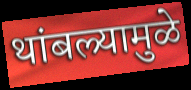
थांबल्यामुळे